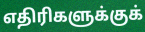
எதிரிகளுக்குக்